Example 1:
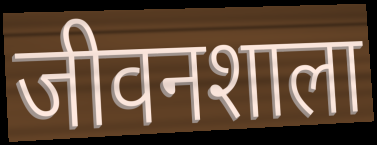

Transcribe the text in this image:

जीवनशाला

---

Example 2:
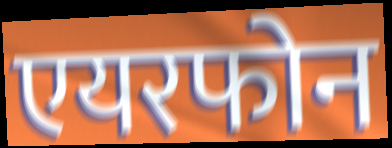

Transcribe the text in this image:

एयरफोन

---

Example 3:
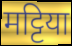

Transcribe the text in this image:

मट्टिया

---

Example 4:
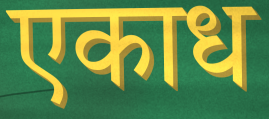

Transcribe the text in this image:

एकाध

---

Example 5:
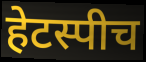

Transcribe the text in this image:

हेटस्पीच